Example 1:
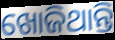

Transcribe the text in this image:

ଖୋଜିଥାନ୍ତି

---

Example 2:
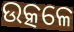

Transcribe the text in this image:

ଉତ୍କଳେ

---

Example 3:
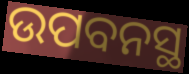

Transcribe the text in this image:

ଉପବନସ୍ଥ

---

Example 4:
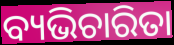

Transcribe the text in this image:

ବ୍ୟଭିଚାରିତା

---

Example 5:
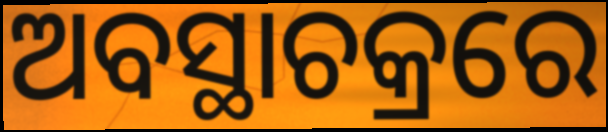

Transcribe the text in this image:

ଅବସ୍ଥାଚକ୍ରରେ